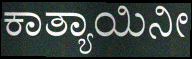
ಕಾತ್ಯಾಯಿನೀ